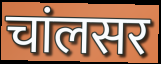
चांलसर